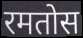
रमतोस